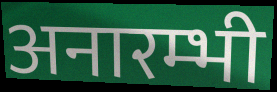
अनारम्भी